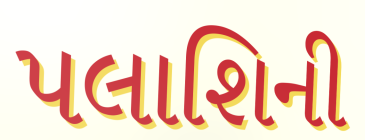
પલાશિની